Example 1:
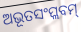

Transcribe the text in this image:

ଅଭୂତସଂପ୍ଲବମ୍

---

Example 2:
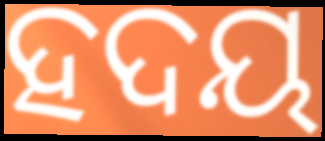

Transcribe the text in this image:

ହଦୟ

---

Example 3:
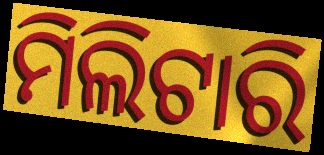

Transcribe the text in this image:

ମିଲିଟାରି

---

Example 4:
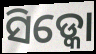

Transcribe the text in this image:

ସିଡ୍କୋ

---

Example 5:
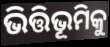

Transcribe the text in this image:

ଭିତ୍ତିଭୂମିକୁ